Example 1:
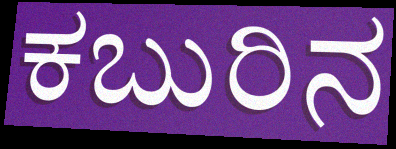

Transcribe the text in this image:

ಕಬುರಿನ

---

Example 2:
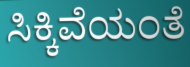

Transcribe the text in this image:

ಸಿಕ್ಕಿವೆಯಂತೆ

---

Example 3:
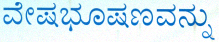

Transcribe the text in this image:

ವೇಷಭೂಷಣವನ್ನು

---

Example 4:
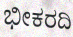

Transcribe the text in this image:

ಭೀಕರದಿ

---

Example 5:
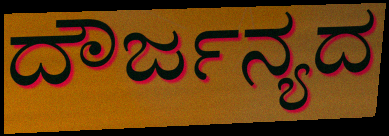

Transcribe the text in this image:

ದೌರ್ಜನ್ಯದ